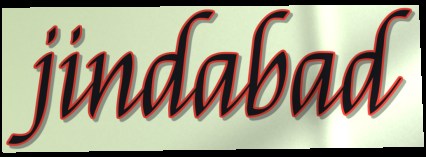
jindabad